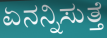
ಏನನ್ನಿಸುತ್ತೆ